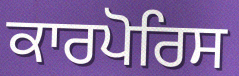
ਕਾਰਪੋਰਿਸ